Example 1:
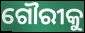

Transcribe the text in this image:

ଗୌରୀକୁ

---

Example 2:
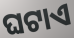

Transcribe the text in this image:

ଘଟାଏ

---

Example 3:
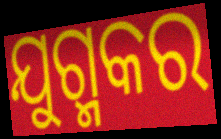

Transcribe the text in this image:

ଯୁଗ୍ମକର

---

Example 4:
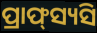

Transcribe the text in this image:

ପ୍ରାଫ୍‌ସ୍ୟସି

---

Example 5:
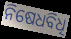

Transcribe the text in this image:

ନିଷେଧବିଧି